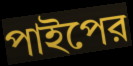
পাইপের